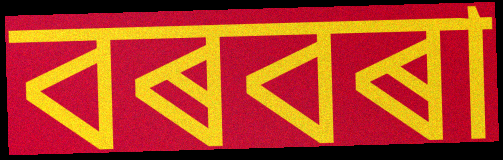
বৰবৰা